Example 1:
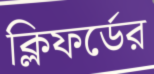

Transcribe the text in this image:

ক্লিফর্ডের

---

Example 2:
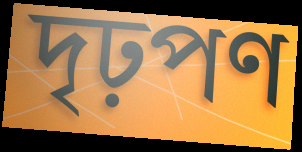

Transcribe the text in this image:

দৃঢ়পণ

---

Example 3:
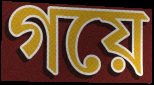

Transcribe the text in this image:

গয়ে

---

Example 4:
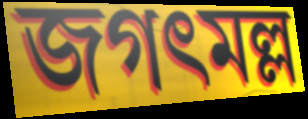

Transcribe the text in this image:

জগৎমল্ল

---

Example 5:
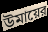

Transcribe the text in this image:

উমায়ের